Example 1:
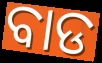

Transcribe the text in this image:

ବାଡ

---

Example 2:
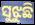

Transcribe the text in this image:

ସୁଝୁଛି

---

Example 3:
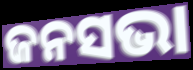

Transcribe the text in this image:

ଜନସଭା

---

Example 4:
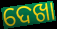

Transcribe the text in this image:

ଦେଖା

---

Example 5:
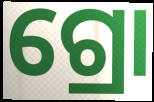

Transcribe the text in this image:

ଗ୍ରୋ